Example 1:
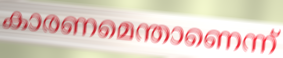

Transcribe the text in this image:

കാരണമെന്താണെന്ന്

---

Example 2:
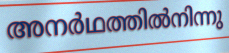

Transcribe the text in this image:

അനർഥത്തിൽനിന്നു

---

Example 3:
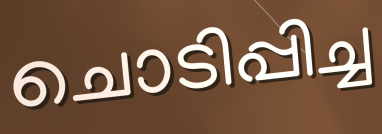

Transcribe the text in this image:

ചൊടിപ്പിച്ച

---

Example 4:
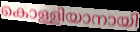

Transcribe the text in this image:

കൊള്ളിയാനായി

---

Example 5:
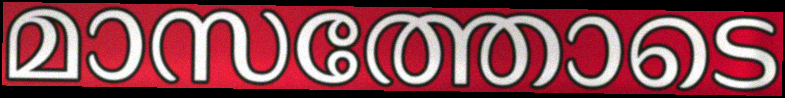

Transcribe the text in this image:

മാസത്തോടെ